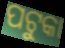
ପଟୁକା